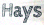
Hays